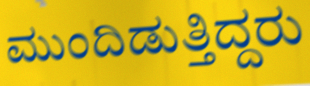
ಮುಂದಿಡುತ್ತಿದ್ದರು